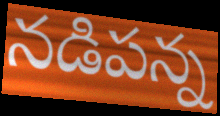
నడిపన్న